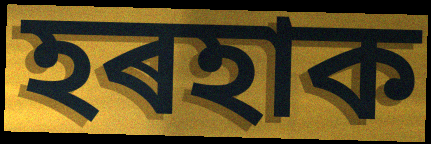
হৰহাক